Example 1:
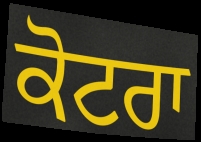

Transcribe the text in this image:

ਕੋਟਰਾ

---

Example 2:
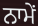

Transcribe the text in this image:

ਨਾਮੇਂ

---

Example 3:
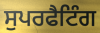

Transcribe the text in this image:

ਸੁਪਰਫੈਟਿੰਗ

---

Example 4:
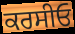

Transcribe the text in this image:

ਕਰਸੀਓ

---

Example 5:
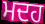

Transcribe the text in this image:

ਮਦਹ